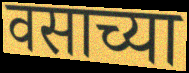
वसाच्या